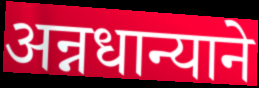
अन्नधान्याने